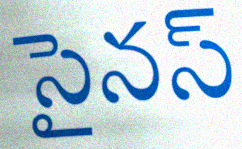
సైనస్